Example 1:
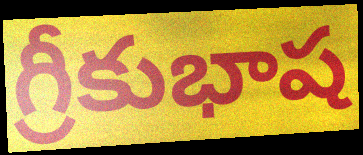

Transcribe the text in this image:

గ్రీకుభాష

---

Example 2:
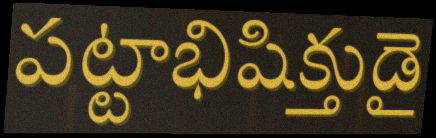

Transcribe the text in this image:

పట్టాభిషిక్తుడై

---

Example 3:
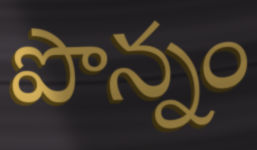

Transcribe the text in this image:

పొన్నం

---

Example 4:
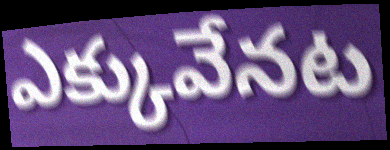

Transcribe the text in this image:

ఎక్కువేనట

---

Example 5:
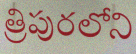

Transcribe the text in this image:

త్రిపురలోని